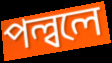
পল্বলে